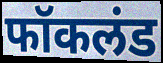
फॉकलंड